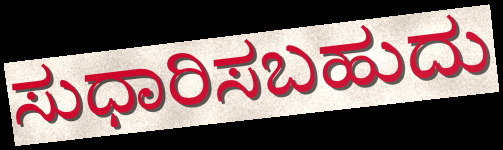
ಸುಧಾರಿಸಬಹುದು